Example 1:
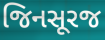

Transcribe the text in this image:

જિનસૂરજ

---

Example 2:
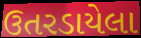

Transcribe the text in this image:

ઉતરડાયેલા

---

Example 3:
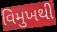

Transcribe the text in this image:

વિમુખથી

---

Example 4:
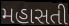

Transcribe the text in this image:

મહાસતી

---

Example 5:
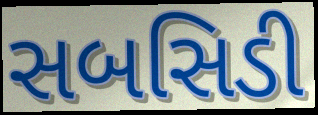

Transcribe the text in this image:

સબસિડી